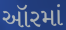
ઑરમાં